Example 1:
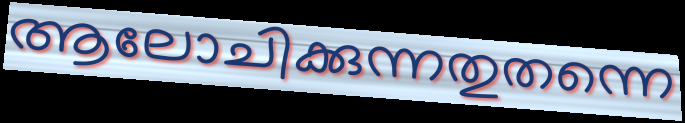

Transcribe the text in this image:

ആലോചിക്കുന്നതുതന്നെ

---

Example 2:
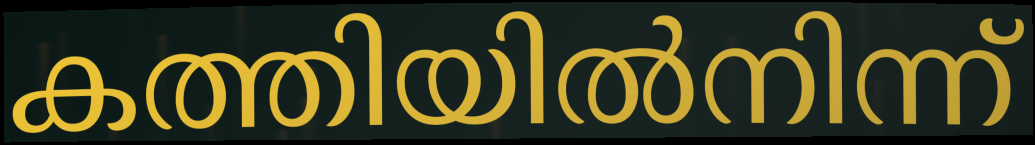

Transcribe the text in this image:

കത്തിയിൽനിന്ന്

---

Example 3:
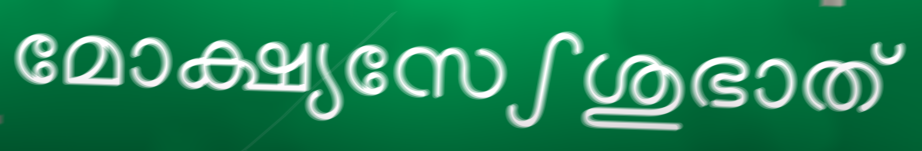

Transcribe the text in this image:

മോക്ഷ്യസേഽശുഭാത്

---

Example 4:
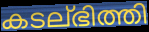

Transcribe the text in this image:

കടല്ഭിത്തി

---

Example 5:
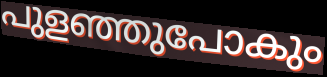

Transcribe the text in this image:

പുളഞ്ഞുപോകും